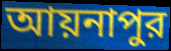
আয়নাপুর